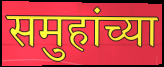
समुहांच्या